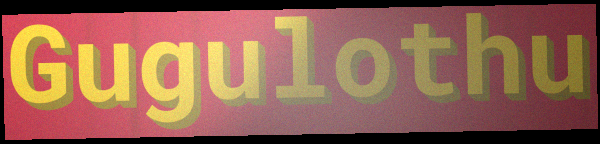
Gugulothu